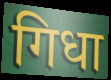
गिधा